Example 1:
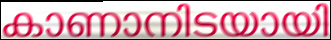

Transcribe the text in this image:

കാണാനിടയായി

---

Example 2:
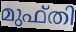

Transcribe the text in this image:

മുഫ്തി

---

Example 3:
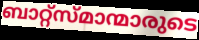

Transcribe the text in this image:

ബാറ്റ്സ്മാന്മാരുടെ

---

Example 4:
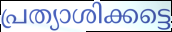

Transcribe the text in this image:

പ്രത്യാശിക്കട്ടെ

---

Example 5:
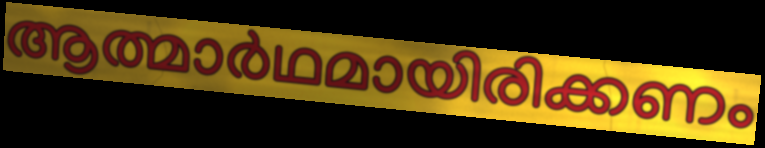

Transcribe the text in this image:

ആത്മാർഥമായിരിക്കണം